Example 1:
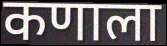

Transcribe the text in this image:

कणाला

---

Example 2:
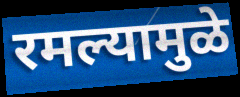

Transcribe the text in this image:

रमल्यामुळे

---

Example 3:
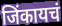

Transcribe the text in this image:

जिंकायचं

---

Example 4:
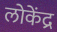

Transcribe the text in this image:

लोकेंद्र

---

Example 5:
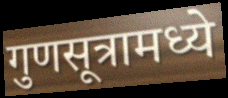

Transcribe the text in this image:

गुणसूत्रामध्ये